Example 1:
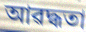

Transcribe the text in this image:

আৱদ্ধতা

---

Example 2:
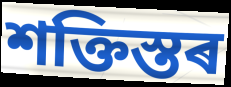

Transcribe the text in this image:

শক্তিস্তৰ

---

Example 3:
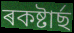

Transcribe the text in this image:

ৰকষ্টাৰ্ছ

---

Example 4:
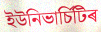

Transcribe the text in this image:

ইউনিভাৰ্চিটিৰ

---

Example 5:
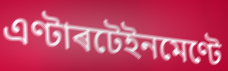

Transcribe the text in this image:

এণ্টাৰটেইনমেণ্টে